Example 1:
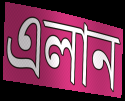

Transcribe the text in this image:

এলান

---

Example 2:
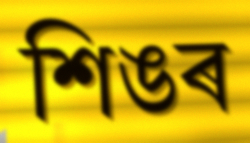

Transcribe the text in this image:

শিঙৰ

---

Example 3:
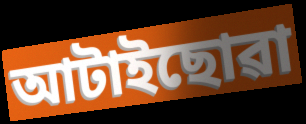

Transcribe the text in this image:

আটাইছোৱা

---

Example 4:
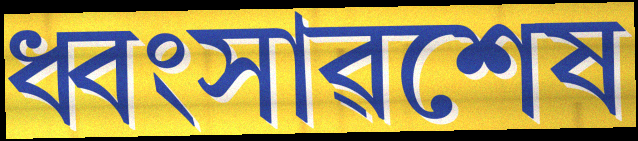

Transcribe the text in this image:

ধ্বংসাৱশেষ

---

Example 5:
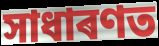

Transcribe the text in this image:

সাধাৰণত